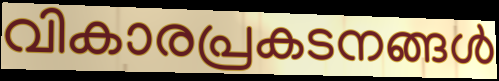
വികാരപ്രകടനങ്ങൾ